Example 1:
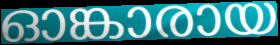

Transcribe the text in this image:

ഓങ്കാരായ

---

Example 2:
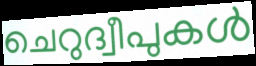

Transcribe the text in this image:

ചെറുദ്വീപുകൾ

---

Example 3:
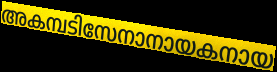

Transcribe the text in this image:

അകമ്പടിസേനാനായകനായ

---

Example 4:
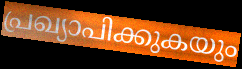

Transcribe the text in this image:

പ്രഖ്യാപിക്കുകയും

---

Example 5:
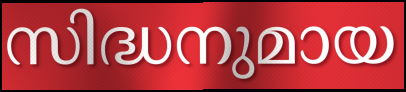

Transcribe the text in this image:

സിദ്ധനുമായ